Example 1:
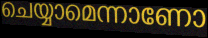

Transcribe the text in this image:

ചെയ്യാമെന്നാണോ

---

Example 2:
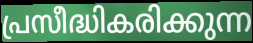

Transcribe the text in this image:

പ്രസീദ്ധികരിക്കുന്ന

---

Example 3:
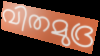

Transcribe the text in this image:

വിതമുദ്ര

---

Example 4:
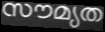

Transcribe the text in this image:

സൗമ്യത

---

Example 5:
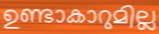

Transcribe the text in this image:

ഉണ്ടാകാറുമില്ല